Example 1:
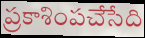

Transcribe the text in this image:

ప్రకాశింపచేసేది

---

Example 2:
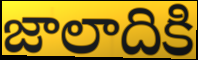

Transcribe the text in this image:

జాలాదికి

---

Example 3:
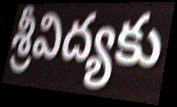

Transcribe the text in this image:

శ్రీవిద్యకు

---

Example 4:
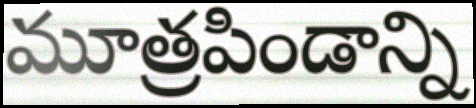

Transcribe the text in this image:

మూత్రపిండాన్ని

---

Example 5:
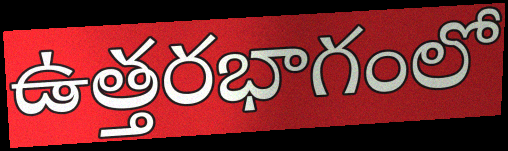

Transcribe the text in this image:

ఉత్తరభాగంలో